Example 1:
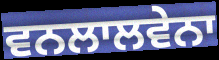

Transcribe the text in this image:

ਵਨਲਾਲਵੇਨਾ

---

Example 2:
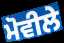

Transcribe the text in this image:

ਮੋਵੀਲੇ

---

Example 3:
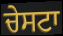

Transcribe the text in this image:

ਚੇਸਟਾ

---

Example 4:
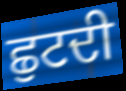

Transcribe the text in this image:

ਛੁਟਦੀ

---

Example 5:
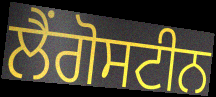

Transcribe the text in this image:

ਲੈਂਗੋਸਟੀਨ